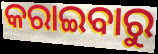
କରାଇବାରୁ